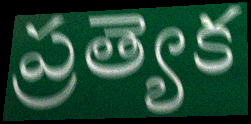
ప్రత్యెక